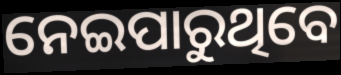
ନେଇପାରୁଥିବେ